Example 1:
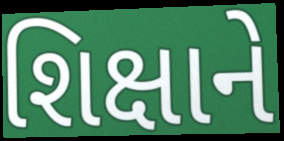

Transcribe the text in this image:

શિક્ષાને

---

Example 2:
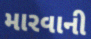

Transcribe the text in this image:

મારવાની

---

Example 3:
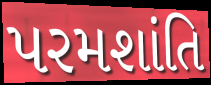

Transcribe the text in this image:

પરમશાંતિ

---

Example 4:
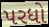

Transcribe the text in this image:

પરધો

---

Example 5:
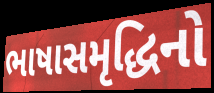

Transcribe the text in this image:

ભાષાસમૃદ્ધિનો